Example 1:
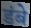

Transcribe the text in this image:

डंबे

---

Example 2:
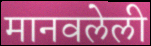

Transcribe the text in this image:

मानवलेली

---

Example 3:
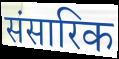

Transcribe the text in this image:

संसारिक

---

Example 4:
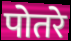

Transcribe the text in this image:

पोतरे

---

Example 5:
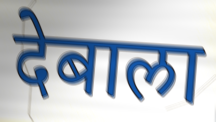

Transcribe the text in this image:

देबाला